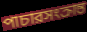
পাচারসংক্রান্ত